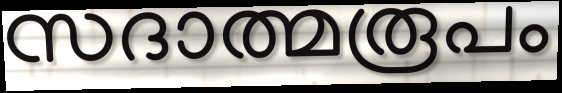
സദാത്മരൂപം